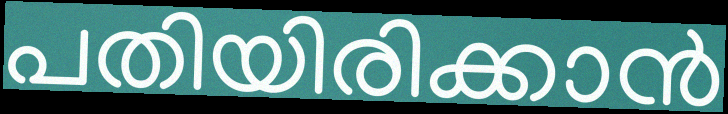
പതിയിരിക്കാൻ